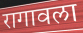
रागावला